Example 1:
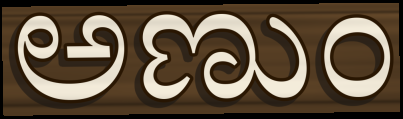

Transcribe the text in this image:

ಅಣುಂ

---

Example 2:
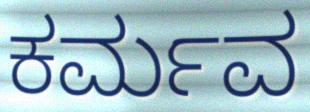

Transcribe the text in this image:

ಕರ್ಮವ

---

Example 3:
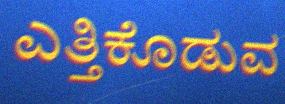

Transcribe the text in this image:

ಎತ್ತಿಕೊಡುವ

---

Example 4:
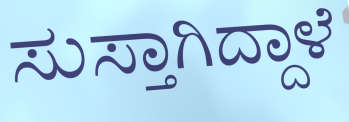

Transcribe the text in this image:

ಸುಸ್ತಾಗಿದ್ದಾಳೆ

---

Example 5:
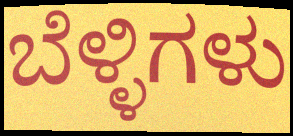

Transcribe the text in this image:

ಬೆಳ್ಳಿಗಳು